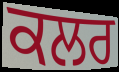
ਕਲਰ